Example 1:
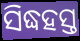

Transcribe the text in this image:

ସିଦ୍ଧହସ୍ତ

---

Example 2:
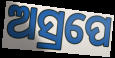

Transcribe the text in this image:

ଅସ୍ରପେ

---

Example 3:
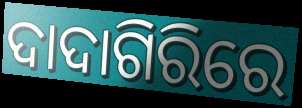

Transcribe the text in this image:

ଦାଦାଗିରିରେ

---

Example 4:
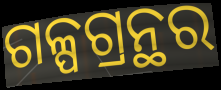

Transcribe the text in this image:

ଗଳ୍ପଗ୍ରନ୍ଥର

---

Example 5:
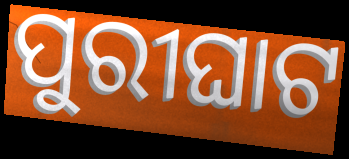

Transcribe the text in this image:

ପୁରୀଘାଟ